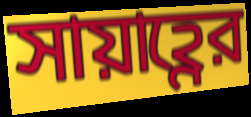
সায়াহ্ণের